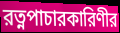
রত্নপাচারকারিণীর